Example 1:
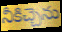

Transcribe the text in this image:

నీకిచ్చెను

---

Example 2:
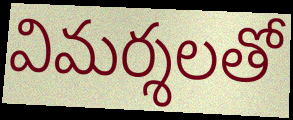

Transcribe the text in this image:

విమర్శలతో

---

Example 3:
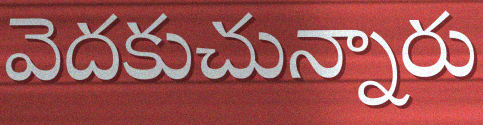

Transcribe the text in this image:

వెదకుచున్నారు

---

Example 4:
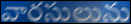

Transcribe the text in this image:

వారసులును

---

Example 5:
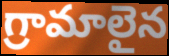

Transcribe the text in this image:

గ్రామాలైన